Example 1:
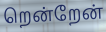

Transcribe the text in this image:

றென்றேன்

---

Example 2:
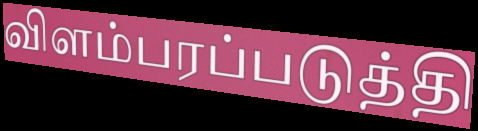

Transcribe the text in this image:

விளம்பரப்படுத்தி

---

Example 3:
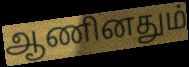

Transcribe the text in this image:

ஆணினதும்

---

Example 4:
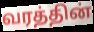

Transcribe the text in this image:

வரத்தின்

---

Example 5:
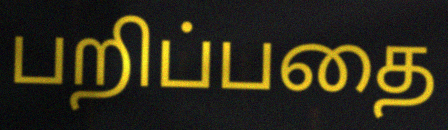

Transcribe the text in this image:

பறிப்பதை